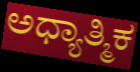
ಅಧ್ಯಾತ್ಮಿಕ